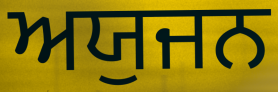
ਅਯੁਜਨ